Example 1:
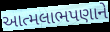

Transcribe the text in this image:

આત્મલાભપણાને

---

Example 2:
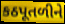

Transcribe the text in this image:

કઠપૂતળીને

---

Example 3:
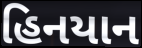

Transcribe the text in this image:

હિનયાન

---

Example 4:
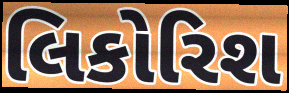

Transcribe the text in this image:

લિકોરિશ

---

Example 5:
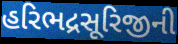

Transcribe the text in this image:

હરિભદ્રસૂરિજીની